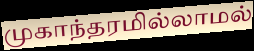
முகாந்தரமில்லாமல்